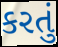
કરતું